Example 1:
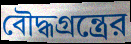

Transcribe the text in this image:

বৌদ্ধগ্রন্ত্রের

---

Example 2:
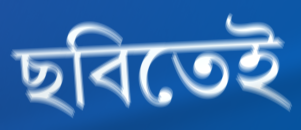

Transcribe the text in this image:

ছবিতেই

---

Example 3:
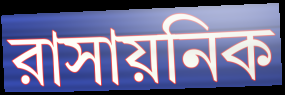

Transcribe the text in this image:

রাসায়নিক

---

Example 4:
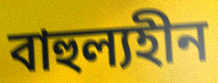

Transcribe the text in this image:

বাহুল্যহীন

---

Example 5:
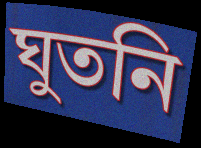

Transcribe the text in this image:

ঘুতনি